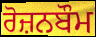
ਰੋਜ਼ਨਬੌਮ